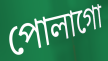
পোলাগো